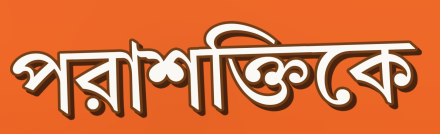
পরাশক্তিকে